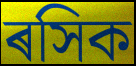
ৰসিক